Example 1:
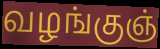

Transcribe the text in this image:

வழங்குஞ்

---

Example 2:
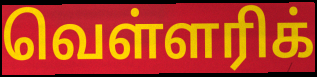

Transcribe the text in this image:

வெள்ளரிக்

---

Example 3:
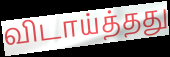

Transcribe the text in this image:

விடாய்த்தது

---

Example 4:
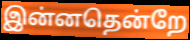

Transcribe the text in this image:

இன்னதென்றே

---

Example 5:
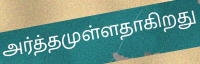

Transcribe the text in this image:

அர்த்தமுள்ளதாகிறது